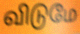
விடுமே